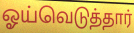
ஓய்வெடுத்தார்